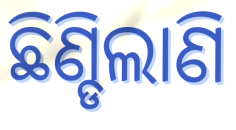
ଛିଣ୍ଡିଲାଣି